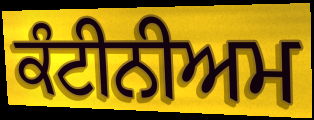
ਕੰਟੀਨੀਅਮ